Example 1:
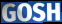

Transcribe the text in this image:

GOSH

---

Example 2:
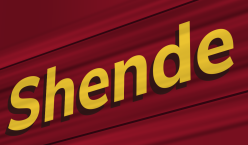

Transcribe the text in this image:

Shende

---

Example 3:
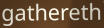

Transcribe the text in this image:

gathereth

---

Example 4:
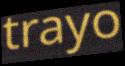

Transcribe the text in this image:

trayo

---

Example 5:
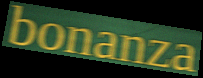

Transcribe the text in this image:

bonanza